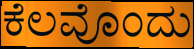
ಕೆಲವೊಂದು